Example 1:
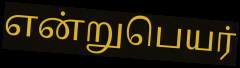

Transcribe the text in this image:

என்றுபெயர்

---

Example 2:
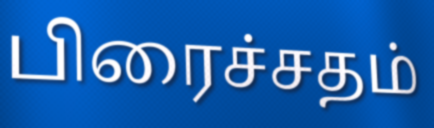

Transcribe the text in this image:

பிரைச்சதம்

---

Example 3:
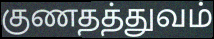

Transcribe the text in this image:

குணதத்துவம்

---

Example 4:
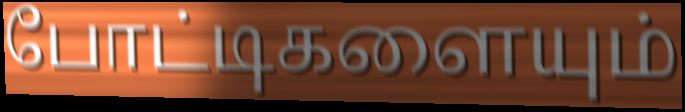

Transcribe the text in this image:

போட்டிகளையும்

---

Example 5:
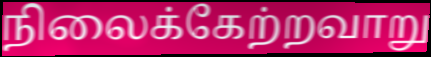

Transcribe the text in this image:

நிலைக்கேற்றவாறு